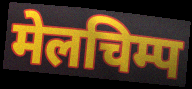
मेलचिम्प